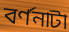
বর্ণনাটা